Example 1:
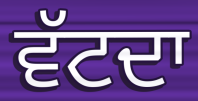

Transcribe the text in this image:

ਵੱਟਦਾ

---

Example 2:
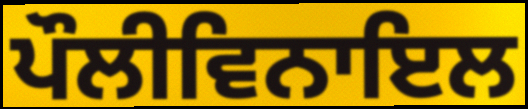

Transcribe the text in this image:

ਪੌਲੀਵਿਨਾਇਲ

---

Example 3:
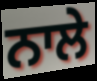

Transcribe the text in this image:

ਨਾਲੇ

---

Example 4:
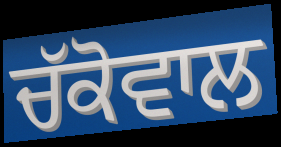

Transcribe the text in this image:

ਚੱਕੋਵਾਲ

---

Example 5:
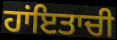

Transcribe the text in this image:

ਹਾਂਇਤਾਚੀ